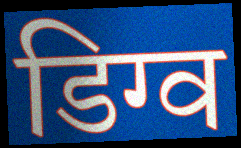
डिग्व